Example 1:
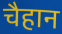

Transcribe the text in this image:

चैहान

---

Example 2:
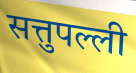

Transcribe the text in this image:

सत्तुपल्ली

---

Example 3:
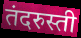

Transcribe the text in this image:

तंदरुस्ती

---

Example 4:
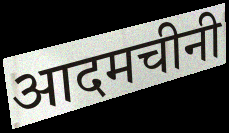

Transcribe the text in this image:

आदमचीनी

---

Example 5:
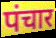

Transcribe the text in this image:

पंचार